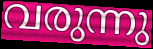
വരുന്നു